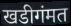
खडीगंमत